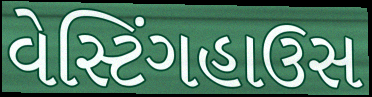
વેસ્ટિંગહાઉસ